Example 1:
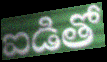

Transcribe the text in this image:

ఐడితో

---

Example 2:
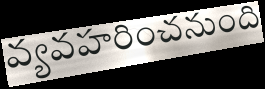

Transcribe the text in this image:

వ్యవహరించనుంది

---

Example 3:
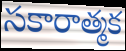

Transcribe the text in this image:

సకారాత్మక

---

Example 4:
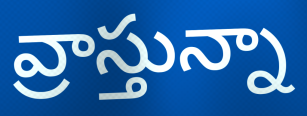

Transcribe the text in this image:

వ్రాస్తున్నా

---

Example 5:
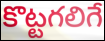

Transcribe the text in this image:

కొట్టగలిగే